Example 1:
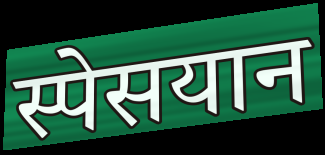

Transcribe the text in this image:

स्पेसयान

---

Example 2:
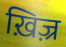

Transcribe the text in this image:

ख़िज़्र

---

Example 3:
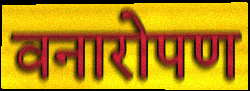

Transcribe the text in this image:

वनारोपण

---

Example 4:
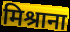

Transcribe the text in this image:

मिश्राना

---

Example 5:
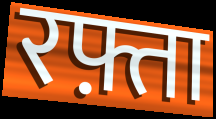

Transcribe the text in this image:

रफ़्ता